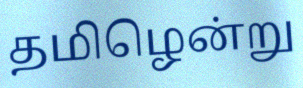
தமிழென்று